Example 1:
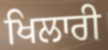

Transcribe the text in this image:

ਖਿਲਾਰੀ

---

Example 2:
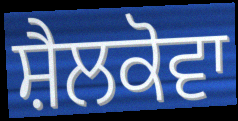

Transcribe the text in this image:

ਸ਼ੈਲਕੋਵਾ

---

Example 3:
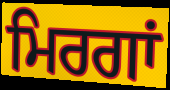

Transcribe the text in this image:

ਮਿਰਗਾਂ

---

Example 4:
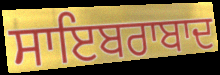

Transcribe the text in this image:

ਸਾਇਬਰਾਬਾਦ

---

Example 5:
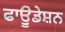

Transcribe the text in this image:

ਫਾਊਡੇਸ਼ਨ